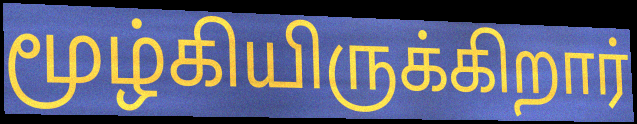
மூழ்கியிருக்கிறார்